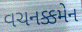
વચનક્કમેન